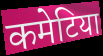
कमेटिया